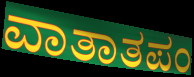
ವಾತಾತಪಂ